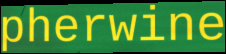
pherwine